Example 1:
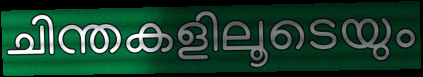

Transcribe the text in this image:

ചിന്തകളിലൂടെയും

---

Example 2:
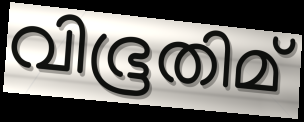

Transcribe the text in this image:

വിഭൂതിമ്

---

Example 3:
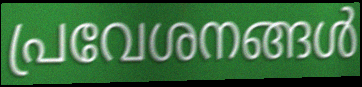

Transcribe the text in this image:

പ്രവേശനങ്ങൾ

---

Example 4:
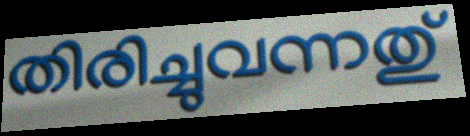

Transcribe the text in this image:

തിരിച്ചുവന്നതു്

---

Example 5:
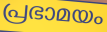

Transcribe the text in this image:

പ്രഭാമയം